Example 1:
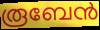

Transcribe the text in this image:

രൂബേൻ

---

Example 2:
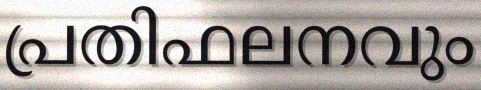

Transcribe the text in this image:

പ്രതിഫലനവും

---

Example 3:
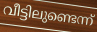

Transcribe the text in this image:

വീട്ടിലുണ്ടെന്ന്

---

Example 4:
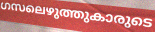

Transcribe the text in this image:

ഗസലെഴുത്തുകാരുടെ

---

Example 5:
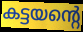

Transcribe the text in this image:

കട്ടയന്റെ